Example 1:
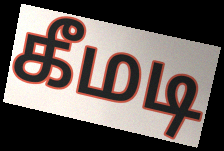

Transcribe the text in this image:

கீமடி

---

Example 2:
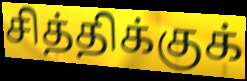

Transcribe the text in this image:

சித்திக்குக்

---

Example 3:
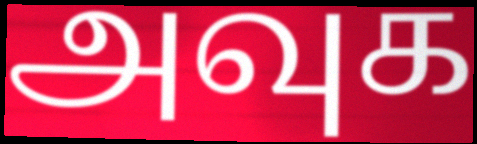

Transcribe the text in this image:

அவுக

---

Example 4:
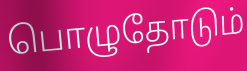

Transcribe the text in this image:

பொழுதோடும்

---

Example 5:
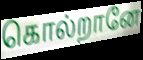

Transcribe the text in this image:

கொல்றானே